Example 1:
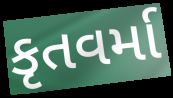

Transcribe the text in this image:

કૃતવર્મા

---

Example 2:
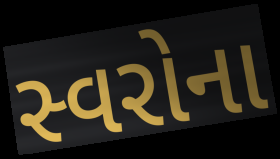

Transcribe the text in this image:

સ્વરોના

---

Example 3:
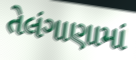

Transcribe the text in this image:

તેલંગાણામાં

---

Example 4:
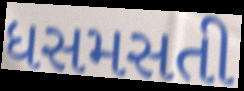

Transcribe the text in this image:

ધસમસતી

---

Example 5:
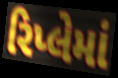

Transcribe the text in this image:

રિપ્લેમાં